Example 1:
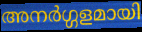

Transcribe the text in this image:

അനർഗ്ഗളമായി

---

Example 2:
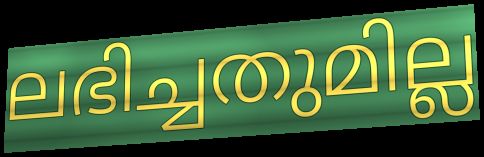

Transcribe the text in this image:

ലഭിച്ചതുമില്ല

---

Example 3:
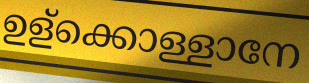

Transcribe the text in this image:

ഉള്ക്കൊള്ളാനേ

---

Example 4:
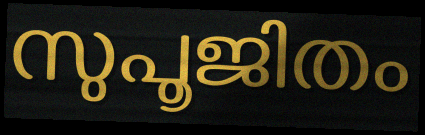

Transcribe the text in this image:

സുപൂജിതം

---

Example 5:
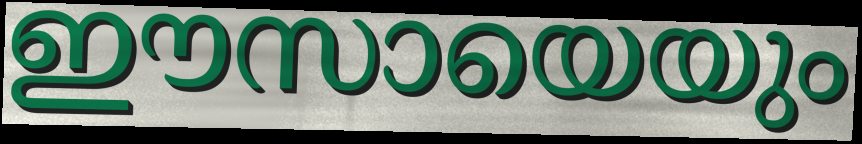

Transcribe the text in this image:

ഈസായെയും